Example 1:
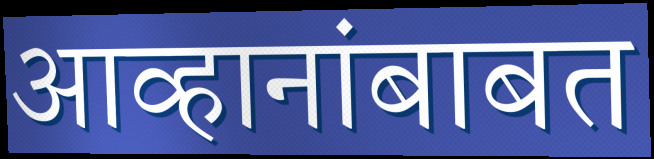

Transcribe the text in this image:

आव्हानांबाबत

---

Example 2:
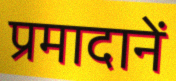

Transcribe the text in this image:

प्रमादानें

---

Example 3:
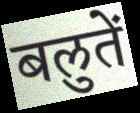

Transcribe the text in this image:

बलुतें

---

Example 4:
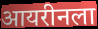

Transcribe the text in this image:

आयरीनला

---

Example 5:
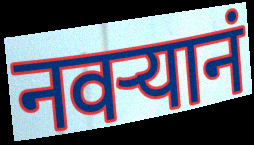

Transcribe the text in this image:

नवर्‍यानं